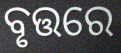
ବୃତ୍ତରେ